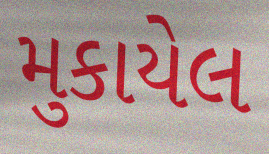
મુકાયેલ